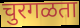
चुरगळता